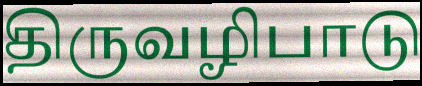
திருவழிபாடு